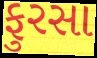
ફુરસા